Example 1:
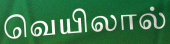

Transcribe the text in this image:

வெயிலால்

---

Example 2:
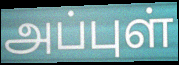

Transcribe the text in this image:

அப்புள்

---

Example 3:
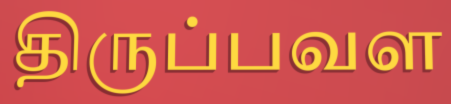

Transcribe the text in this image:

திருப்பவள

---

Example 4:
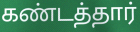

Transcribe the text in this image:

கண்டத்தார்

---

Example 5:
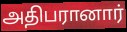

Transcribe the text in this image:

அதிபரானார்